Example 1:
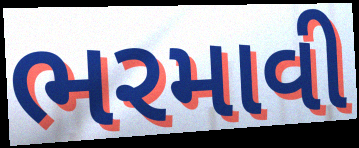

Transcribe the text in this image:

ભરમાવી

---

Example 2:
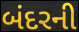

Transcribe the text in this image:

બંદરની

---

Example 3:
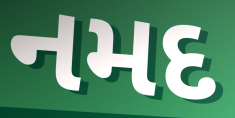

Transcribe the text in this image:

નમદ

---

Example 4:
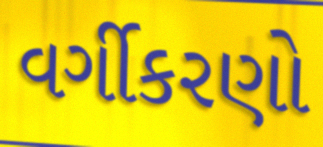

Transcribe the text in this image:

વર્ગીકરણો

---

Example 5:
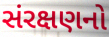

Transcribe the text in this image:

સંરક્ષણનો